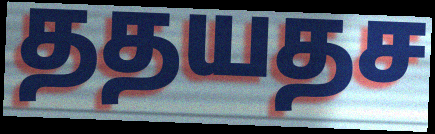
ததயதச